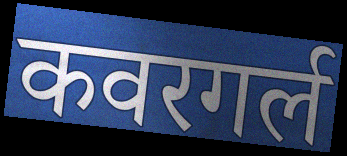
कवरगर्ल